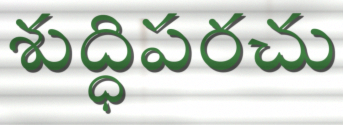
శుద్ధిపరచు